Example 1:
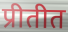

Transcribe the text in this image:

प्रीतीत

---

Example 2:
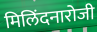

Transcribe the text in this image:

मिलिंदनारोजी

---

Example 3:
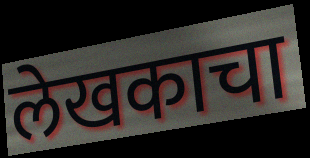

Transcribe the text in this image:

लेखकाचा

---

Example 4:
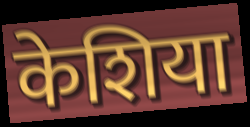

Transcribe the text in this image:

केशिया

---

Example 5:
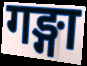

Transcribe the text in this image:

गङ्गा